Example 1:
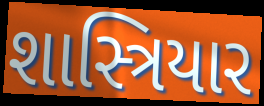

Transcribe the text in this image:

શાસ્ત્રિયાર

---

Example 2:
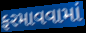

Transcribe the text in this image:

ફરમાવવામાં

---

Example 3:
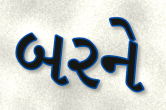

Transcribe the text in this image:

બરને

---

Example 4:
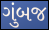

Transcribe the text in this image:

ગુંબજ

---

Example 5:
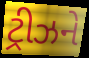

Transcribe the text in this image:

ટ્રીઝને